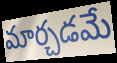
మార్చడమే